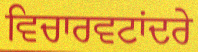
ਵਿਚਾਰਵਟਾਂਦਰੇ